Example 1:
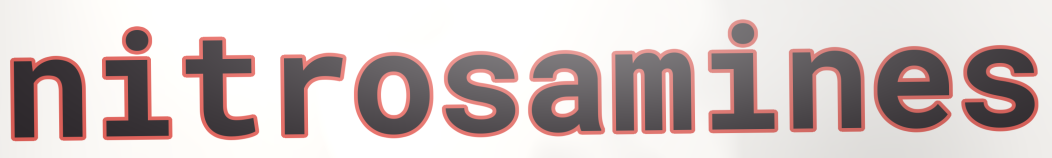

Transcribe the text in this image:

nitrosamines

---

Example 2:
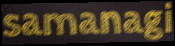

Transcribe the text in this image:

samanagi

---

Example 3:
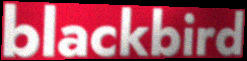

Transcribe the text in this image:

blackbird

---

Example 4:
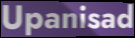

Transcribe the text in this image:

Upanisad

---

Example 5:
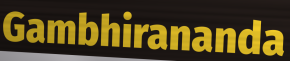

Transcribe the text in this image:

Gambhirananda